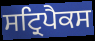
ਸਟ੍ਰਿਪੈਕਸ